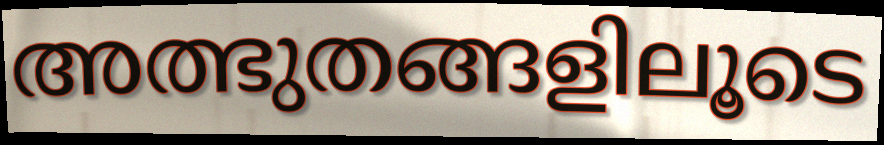
അത്ഭുതങ്ങളിലൂടെ